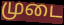
முடை